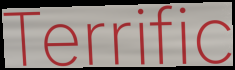
Terrific